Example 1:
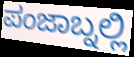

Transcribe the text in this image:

ಪಂಜಾಬ್ನಲ್ಲಿ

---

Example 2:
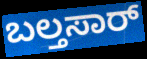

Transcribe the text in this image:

ಬಲ್ತಸಾರ್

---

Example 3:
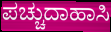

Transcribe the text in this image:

ಪಚ್ಚುದಾಹಾಸಿ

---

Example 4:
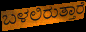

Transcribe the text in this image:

ಬಳಲಿರುತ್ತಾರೆ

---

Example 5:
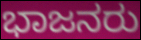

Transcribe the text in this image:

ಭಾಜನರು